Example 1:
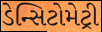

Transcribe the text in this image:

ડેન્સિટોમેટ્રી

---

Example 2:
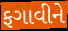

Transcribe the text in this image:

ફગાવીને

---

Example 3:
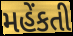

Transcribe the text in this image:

મહેંકતી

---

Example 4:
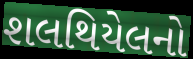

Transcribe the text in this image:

શલથિયેલનો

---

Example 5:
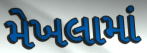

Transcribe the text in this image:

મેખલામાં